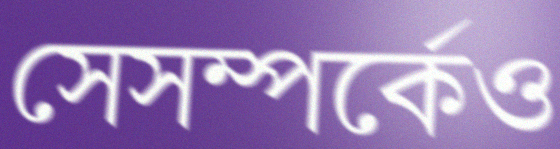
সেসম্পর্কেও